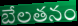
బేలతనం